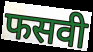
फसवी